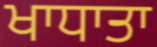
ਖਾਧਾਤਾ